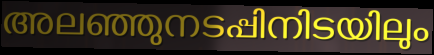
അലഞ്ഞുനടപ്പിനിടയിലും